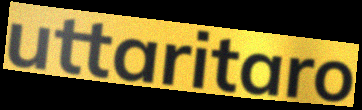
uttaritaro